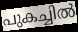
പുകച്ചിൽ